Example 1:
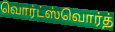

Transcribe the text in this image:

வொர்ட்ஸ்வொர்த்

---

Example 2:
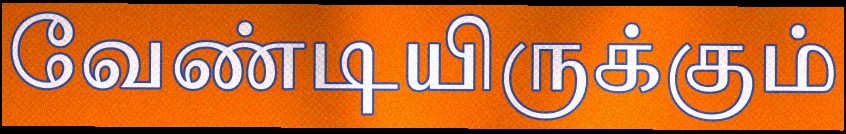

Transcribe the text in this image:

வேண்டியிருக்கும்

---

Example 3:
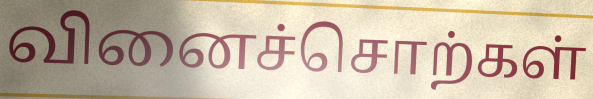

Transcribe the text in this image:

வினைச்சொற்கள்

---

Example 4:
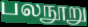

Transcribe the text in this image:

பலநூறு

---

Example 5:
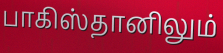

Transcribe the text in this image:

பாகிஸ்தானிலும்